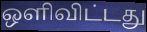
ஒளிவிட்டது